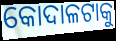
କୋଦାଳଟାକୁ